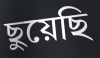
ছুয়েছি